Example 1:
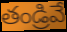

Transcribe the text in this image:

తండ్రివే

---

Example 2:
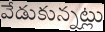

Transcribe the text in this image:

వేడుకున్నట్లు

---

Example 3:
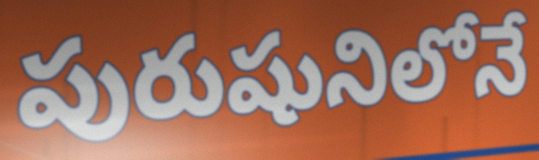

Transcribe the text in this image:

పురుషునిలోనే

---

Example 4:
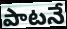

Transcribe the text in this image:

పాటనే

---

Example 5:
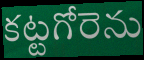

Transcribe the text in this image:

కట్టగోరెను